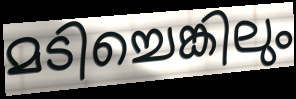
മടിച്ചെങ്കിലും